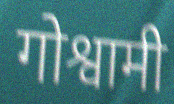
गोश्वामी